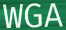
WGA